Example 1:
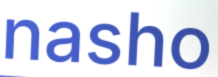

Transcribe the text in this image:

nasho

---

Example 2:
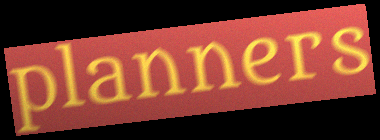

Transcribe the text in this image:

planners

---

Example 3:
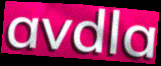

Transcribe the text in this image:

avdla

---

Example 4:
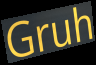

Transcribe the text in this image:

Gruh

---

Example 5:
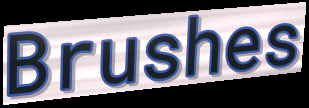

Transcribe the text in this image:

Brushes